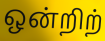
ஒன்றிற்